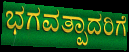
ಭಗವತ್ಪಾದರಿಗೆ